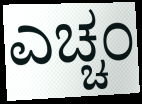
ಎಚ್ಚಂ